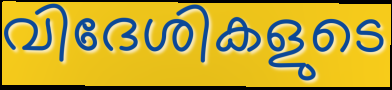
വിദേശികളുടെ